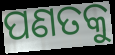
ପଣତକୁ